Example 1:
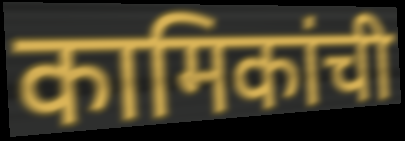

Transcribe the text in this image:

कामिकांची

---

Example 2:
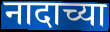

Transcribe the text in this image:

नादाच्या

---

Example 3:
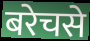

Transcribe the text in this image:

बरेचसे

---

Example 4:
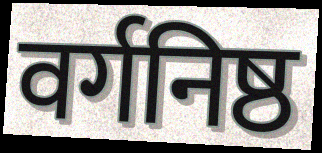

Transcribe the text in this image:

वर्गनिष्ठ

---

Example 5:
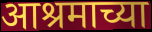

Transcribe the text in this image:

आश्रमाच्या